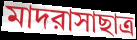
মাদরাসাছাত্র